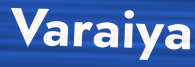
Varaiya